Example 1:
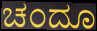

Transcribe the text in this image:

ಚಂದೂ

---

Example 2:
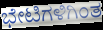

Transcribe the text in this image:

ಭೇಟಿಗಳಿಗಿಂತ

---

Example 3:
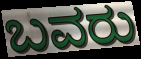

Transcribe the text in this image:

ಬವರು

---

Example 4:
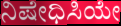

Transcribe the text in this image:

ನಿಷೇಧಿಸಿಯೇ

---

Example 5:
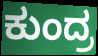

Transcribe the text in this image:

ಕುಂದ್ರ